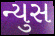
ન્યુસ